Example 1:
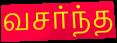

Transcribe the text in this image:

வசர்ந்த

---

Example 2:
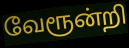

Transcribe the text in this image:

வேரூன்றி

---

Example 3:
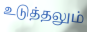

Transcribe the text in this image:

உடுத்தலும்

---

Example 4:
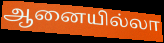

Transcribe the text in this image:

ஆனையில்லா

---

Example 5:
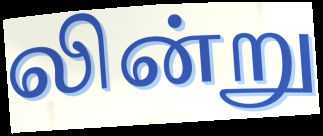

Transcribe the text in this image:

லின்று